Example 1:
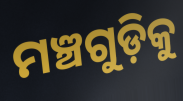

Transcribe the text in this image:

ମଞ୍ଚଗୁଡ଼ିକୁ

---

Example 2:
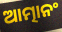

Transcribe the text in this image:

ଆତ୍ମାନଂ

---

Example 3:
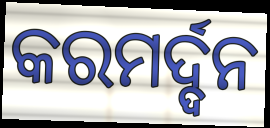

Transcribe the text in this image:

କରମର୍ଦ୍ଦନ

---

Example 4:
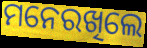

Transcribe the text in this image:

ମନେରଖିଲେ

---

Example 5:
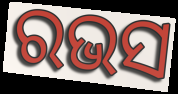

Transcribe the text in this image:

ରଭସ